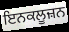
ਇਨਕਲੂਜ਼ਨ